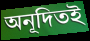
অনূদিতই